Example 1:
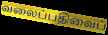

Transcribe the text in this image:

வலைப்பதிவைப்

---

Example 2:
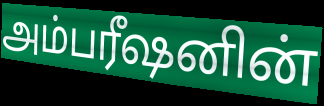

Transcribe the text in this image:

அம்பரீஷனின்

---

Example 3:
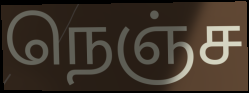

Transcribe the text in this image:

நெஞ்ச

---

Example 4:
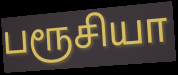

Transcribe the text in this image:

பரூசியா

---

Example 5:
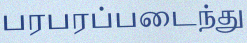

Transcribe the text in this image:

பரபரப்படைந்து